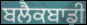
ਬਲੈਕਬਾਡੀ